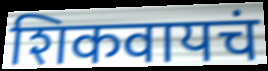
शिकवायचं